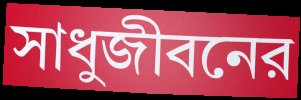
সাধুজীবনের